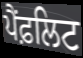
ਪੈਂਫ਼ਲਿਟ